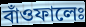
বাঁওফালেঃ